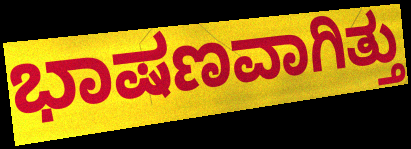
ಭಾಷಣವಾಗಿತ್ತು